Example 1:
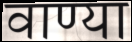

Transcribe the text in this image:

वाण्या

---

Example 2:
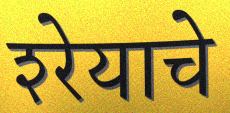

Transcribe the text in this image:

श्रेयाचे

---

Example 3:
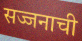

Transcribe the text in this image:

सज्जनाची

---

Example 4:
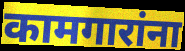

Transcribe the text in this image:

कामगारांना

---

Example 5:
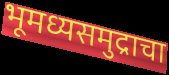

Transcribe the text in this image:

भूमध्यसमुद्राचा